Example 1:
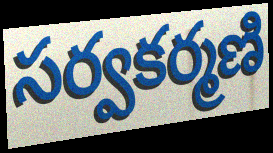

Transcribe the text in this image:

సర్వకర్మణి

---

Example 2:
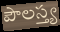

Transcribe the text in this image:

పౌలస్త్య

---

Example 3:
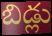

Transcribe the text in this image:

బిడ్లు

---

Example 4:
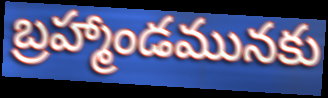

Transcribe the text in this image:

బ్రహ్మాండమునకు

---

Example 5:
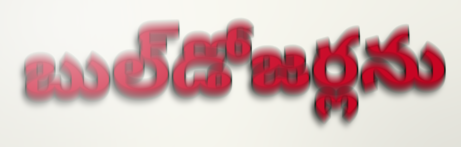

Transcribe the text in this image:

బుల్‌డోజర్లను